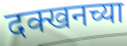
दक्खनच्या